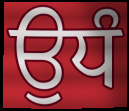
ਉਧੰ